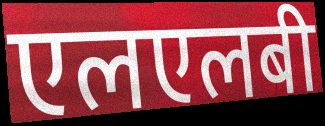
एलएलबी